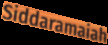
Siddaramaiah